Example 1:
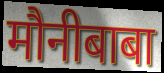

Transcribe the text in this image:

मौनीबाबा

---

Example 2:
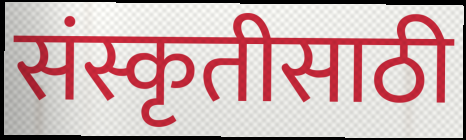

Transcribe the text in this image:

संस्कृतीसाठी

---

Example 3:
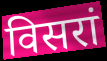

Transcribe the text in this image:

विसरां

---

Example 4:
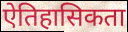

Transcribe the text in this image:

ऐतिहासिकता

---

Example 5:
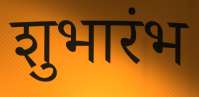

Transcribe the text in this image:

शुभारंभ